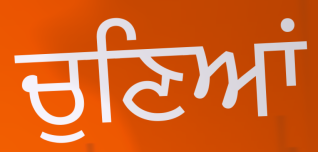
ਚੁਣਿਆਂ